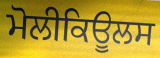
ਮੋਲੀਕਿਊਲਸ